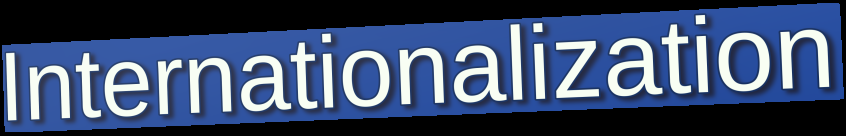
Internationalization